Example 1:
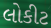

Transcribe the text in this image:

લોકીટ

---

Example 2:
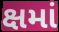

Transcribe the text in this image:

ક્ષમાં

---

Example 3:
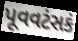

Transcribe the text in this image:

પૂવવટંસકં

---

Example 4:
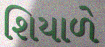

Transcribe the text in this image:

શિયાળે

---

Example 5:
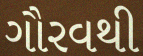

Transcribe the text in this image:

ગૌરવથી